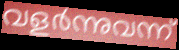
വളർന്നുവന്ന്